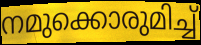
നമുക്കൊരുമിച്ച്